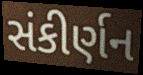
સંકીર્ણન